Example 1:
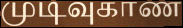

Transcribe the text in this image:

முடிவுகாண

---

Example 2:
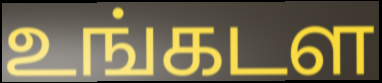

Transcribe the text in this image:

உங்கடள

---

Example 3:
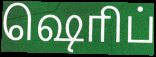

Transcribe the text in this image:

ஷெரிப்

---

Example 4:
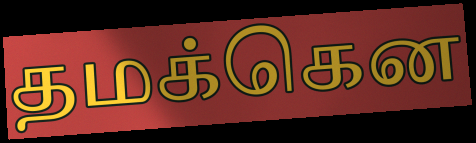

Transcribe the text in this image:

தமக்கென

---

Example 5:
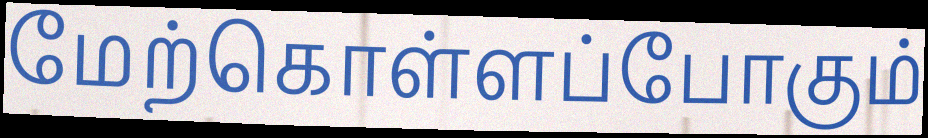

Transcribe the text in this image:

மேற்கொள்ளப்போகும்